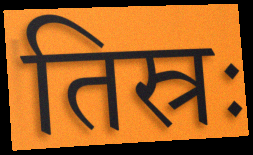
तिस्रः